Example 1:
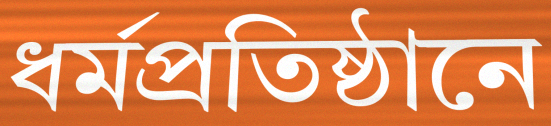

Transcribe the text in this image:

ধর্মপ্রতিষ্ঠানে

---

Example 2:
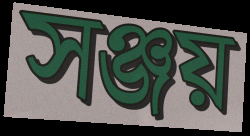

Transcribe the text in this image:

সঞ্জয়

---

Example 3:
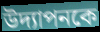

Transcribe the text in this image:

উদ্যাপনকে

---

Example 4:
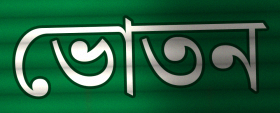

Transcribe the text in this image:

ভোতন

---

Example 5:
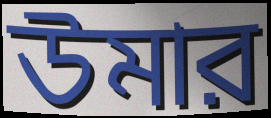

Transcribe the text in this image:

উমার